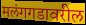
मलंगगडावरील